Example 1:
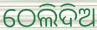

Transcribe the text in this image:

ଠେଲିଦିଅ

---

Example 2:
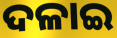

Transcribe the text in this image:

ଦଳାଇ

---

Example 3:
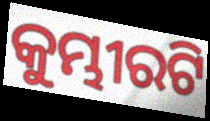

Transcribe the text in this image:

କୁମ୍ଭୀରଟି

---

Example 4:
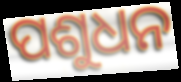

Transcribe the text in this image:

ପଶୁଧନ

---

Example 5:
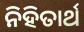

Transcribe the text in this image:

ନିହିତାର୍ଥ